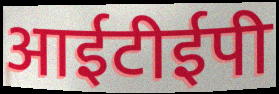
आईटीईपी